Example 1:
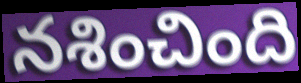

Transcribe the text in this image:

నశించింది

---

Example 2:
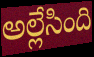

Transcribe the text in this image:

అల్లేసింది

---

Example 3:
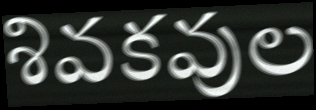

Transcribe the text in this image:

శివకవుల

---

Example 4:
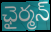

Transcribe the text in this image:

ఛైర్మన్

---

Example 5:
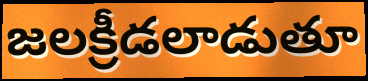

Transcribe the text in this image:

జలక్రీడలాడుతూ